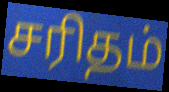
சரிதம்